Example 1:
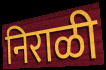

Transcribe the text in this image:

निराळी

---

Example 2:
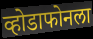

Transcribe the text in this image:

व्होडाफोनला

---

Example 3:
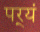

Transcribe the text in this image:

पर्यं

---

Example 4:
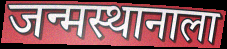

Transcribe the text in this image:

जन्मस्थानाला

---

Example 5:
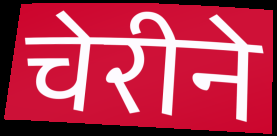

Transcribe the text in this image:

चेरीने